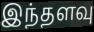
இந்தளவு